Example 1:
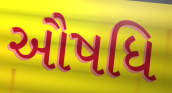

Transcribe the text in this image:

ઔષધિ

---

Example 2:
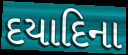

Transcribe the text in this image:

દયાદિના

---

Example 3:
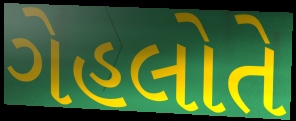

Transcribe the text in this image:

ગેહલોતે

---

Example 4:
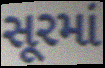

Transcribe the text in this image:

સૂરમાં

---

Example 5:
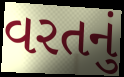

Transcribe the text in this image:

વરતનું